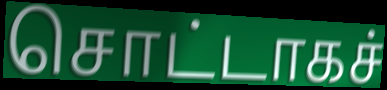
சொட்டாகச்